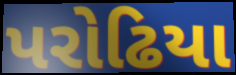
પરોઢિયા